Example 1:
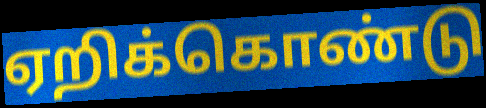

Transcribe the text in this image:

ஏறிக்கொண்டு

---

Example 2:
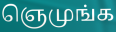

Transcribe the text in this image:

ஞெமுங்க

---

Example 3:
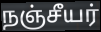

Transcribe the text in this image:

நஞ்சீயர்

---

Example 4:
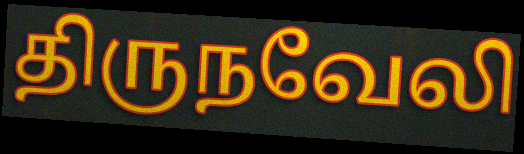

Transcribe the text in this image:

திருநவேலி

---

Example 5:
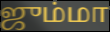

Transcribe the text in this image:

ஜும்மா